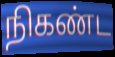
நிகண்ட